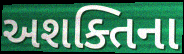
અશક્તિના